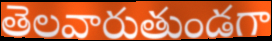
తెలవారుతుండగా